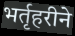
भर्तृहरीने